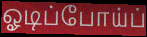
ஓடிப்போய்ப்